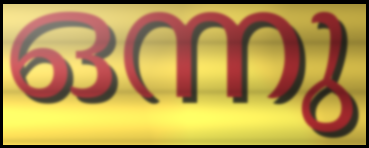
ഒന്നു